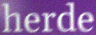
herde